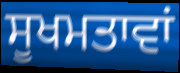
ਸੂਖਮਤਾਵਾਂ